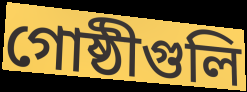
গোষ্ঠীগুলি